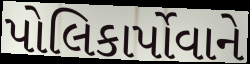
પોલિકાર્પોવાને